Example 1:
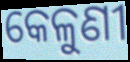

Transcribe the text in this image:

କେଳୁଣୀ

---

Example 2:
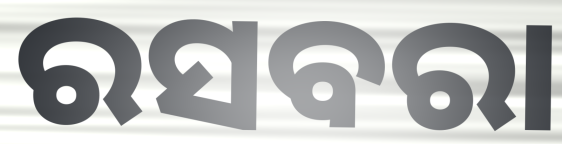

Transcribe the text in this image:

ରସବରା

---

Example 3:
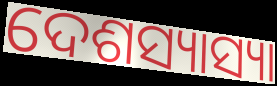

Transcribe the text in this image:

ଦେଶସ୍ୟାସ୍ୟା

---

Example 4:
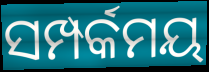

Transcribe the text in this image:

ସମ୍ପର୍କମୟ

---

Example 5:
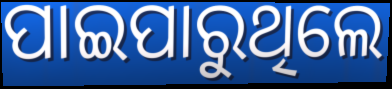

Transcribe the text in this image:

ପାଇପାରୁଥିଲେ